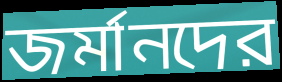
জর্মানদের